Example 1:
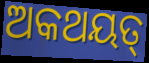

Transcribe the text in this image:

ଅକଥୟତ୍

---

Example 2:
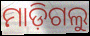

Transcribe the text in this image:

ମାଡ଼ିଗଲୁ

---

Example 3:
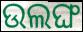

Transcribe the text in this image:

ଉଲଙ୍ଘ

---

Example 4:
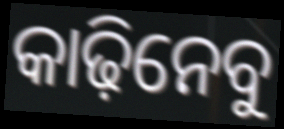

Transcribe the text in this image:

କାଢ଼ିନେବୁ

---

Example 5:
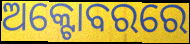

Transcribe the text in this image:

ଅକ୍ଟୋବରରେ